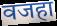
वजहा